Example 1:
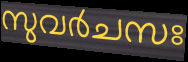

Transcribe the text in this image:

സുവർചസഃ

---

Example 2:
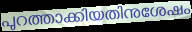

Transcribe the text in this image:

പുറത്താക്കിയതിനുശേഷം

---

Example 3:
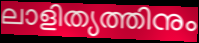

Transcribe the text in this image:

ലാളിത്യത്തിനും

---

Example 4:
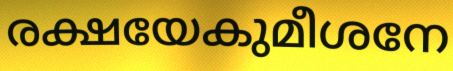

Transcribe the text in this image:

രക്ഷയേകുമീശനേ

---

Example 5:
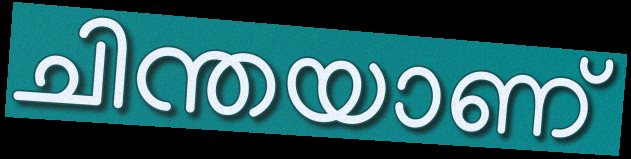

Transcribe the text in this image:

ചിന്തയാണ്